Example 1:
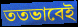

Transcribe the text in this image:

ততভাবেই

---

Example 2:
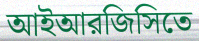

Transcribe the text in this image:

আইআরজিসিতে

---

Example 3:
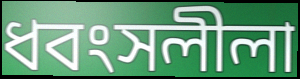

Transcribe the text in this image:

ধবংসলীলা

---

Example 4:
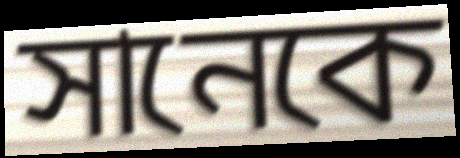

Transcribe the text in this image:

সানেকে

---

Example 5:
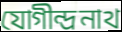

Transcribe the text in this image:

যোগীন্দ্রনাথ